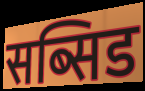
सब्सिड